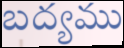
బద్యము